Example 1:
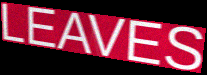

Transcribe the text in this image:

LEAVES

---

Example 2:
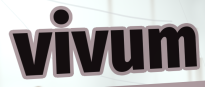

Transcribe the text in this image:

vivum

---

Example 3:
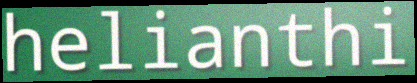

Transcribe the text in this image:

helianthi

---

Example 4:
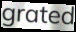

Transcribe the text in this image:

grated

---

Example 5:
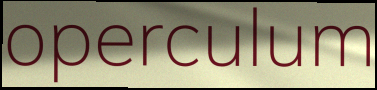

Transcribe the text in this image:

operculum